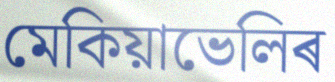
মেকিয়াভেলিৰ